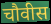
चौवीस